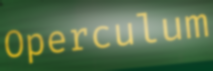
Operculum